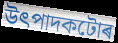
উৎপাদকটোৰ